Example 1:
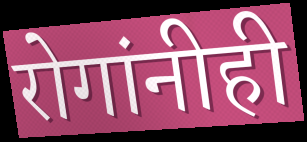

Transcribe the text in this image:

रोगांनीही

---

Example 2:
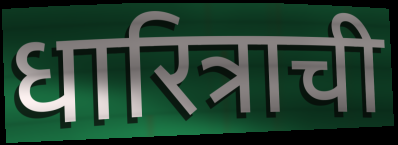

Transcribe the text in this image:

धारित्राची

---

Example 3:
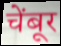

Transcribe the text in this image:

चेंबूर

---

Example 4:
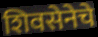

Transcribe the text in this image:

शिवसेनेचे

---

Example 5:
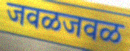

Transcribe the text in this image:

जवळजवळ